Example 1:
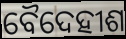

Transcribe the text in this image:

ବୈଦେହୀଶ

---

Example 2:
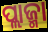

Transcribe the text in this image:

ପ୍ଲାଜ୍ମା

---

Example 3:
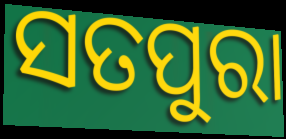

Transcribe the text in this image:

ସତପୁରା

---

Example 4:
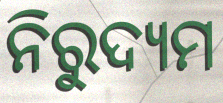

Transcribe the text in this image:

ନିରୁଦ୍ୟମ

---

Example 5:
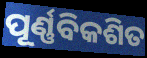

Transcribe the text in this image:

ପୂର୍ଣ୍ଣବିକଶିତ